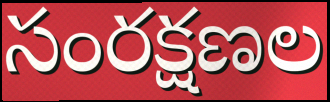
సంరక్షణల